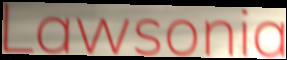
Lawsonia